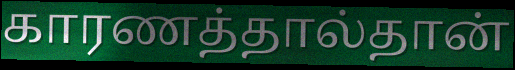
காரணத்தால்தான்